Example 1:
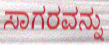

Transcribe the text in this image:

ಸಾಗರವನ್ನು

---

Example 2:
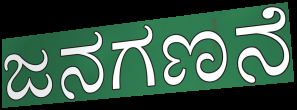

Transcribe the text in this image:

ಜನಗಣನೆ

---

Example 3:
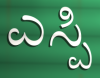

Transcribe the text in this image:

ಎಸ್ಪಿ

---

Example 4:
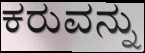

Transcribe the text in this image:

ಕರುವನ್ನು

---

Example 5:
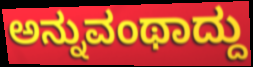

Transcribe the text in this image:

ಅನ್ನುವಂಥಾದ್ದು